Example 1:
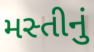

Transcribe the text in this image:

મસ્તીનું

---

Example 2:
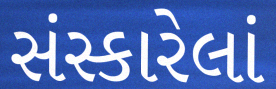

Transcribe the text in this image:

સંસ્કારેલાં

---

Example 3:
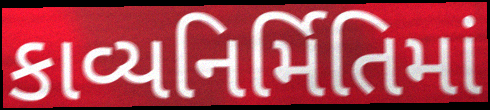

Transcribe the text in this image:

કાવ્યનિર્મિતિમાં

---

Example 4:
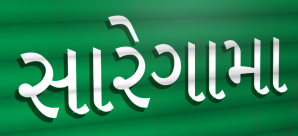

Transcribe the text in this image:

સારેગામા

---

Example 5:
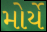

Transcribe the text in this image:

મોર્યે